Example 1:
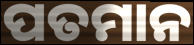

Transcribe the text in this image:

ପତମାନ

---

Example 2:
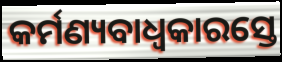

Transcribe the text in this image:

କର୍ମଣ୍ୟବାଧ୍ୱକାରସ୍ତେ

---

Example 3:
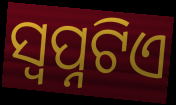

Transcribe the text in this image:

ସ୍ବପ୍ନଟିଏ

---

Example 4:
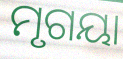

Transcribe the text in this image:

ମୃଗୟା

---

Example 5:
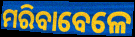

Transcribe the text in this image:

ମରିବାବେଳେ